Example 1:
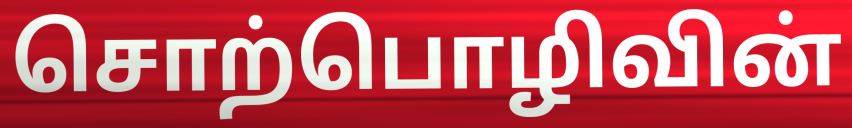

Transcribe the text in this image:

சொற்பொழிவின்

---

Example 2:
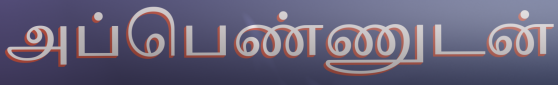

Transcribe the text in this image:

அப்பெண்ணுடன்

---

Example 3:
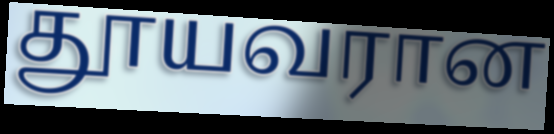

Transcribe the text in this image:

தூயவரான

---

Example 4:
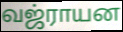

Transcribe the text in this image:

வஜ்ராயன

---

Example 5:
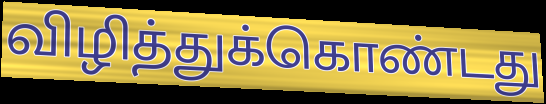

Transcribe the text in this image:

விழித்துக்கொண்டது